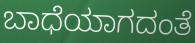
ಬಾಧೆಯಾಗದಂತೆ